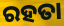
ରହତା